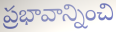
ప్రభావాన్నించి